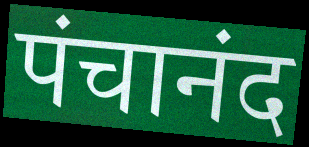
पंचानंद